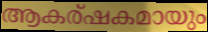
ആകര്ഷകമായും